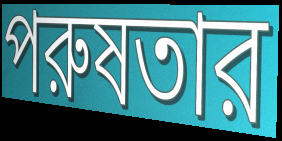
পরুষতার